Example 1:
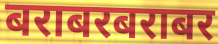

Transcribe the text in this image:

बराबरबराबर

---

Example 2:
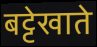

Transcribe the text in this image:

बट्टेखाते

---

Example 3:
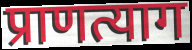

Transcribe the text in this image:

प्राणत्याग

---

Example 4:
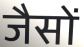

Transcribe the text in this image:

जैसों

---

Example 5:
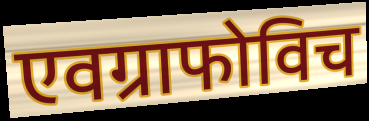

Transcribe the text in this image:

एवग्राफोविच